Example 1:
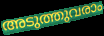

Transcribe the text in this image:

അടുത്തുവരാം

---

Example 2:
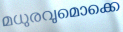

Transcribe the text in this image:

മധുരവുമൊക്കെ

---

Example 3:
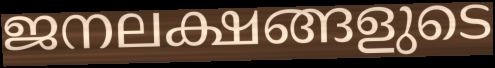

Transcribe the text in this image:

ജനലക്ഷങ്ങളുടെ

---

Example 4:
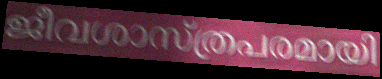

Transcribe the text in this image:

ജീവശാസ്ത്രപരമായി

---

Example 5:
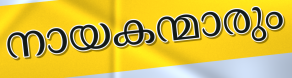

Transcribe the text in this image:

നായകന്മാരും